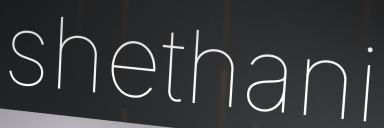
shethani